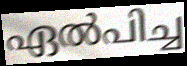
ഏൽപിച്ച